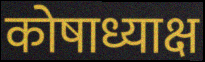
कोषाध्याक्ष